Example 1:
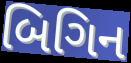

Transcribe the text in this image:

બિગિન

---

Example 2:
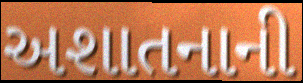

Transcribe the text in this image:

અશાતનાની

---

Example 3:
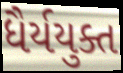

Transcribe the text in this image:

ધૈર્યયુક્ત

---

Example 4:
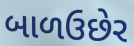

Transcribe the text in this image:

બાળઉછેર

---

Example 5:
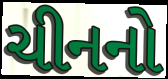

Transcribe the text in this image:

ચીનનો